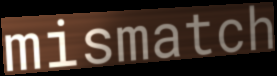
mismatch